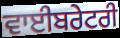
ਵਾਈਬਰੇਟਰੀ